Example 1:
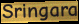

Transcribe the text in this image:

Sringara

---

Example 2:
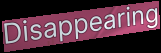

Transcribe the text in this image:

Disappearing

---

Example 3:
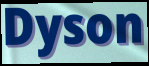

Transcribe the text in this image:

Dyson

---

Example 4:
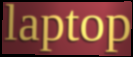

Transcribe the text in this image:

laptop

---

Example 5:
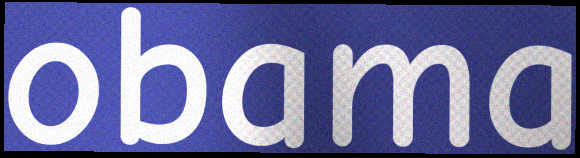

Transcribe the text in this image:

obama